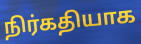
நிர்கதியாக